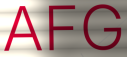
AFG